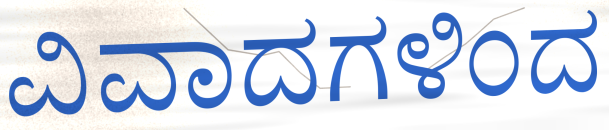
ವಿವಾದಗಳಿಂದ